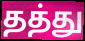
தத்து